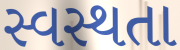
સ્વસ્થતા